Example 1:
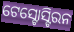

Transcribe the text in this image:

ଟେସ୍ଟୋସ୍ଟିରନ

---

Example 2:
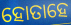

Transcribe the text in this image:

ହୋତାହେ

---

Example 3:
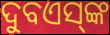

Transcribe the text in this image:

ଦୁବଏସ୍‌ଙ୍କ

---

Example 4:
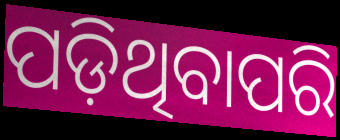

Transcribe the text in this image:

ପଡ଼ିଥିବାପରି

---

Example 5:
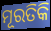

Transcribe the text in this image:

ମୂରତିକି